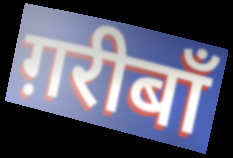
ग़रीबाँ